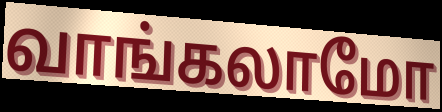
வாங்கலாமோ